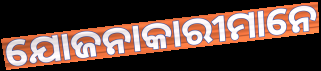
ଯୋଜନାକାରୀମାନେ